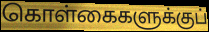
கொள்கைகளுக்குப்